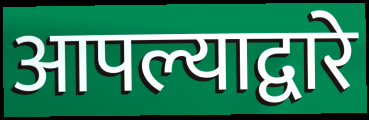
आपल्याद्वारे